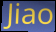
Jiao